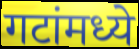
गटांमध्ये